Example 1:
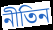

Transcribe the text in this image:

নীতিন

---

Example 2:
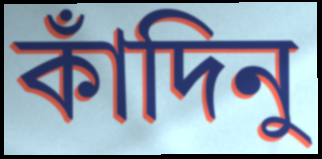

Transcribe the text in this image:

কাঁদিনু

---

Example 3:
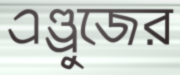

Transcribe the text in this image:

এণ্ড্রুজের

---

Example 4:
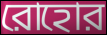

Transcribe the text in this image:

রোহোর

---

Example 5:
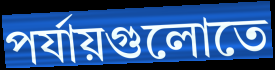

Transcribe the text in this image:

পর্যায়গুলোতে